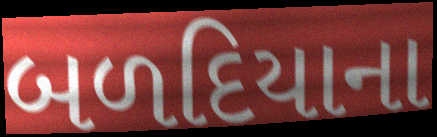
બળદિયાના